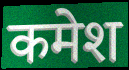
कमेश